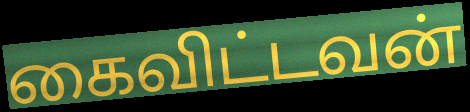
கைவிட்டவன்